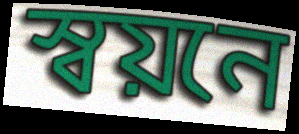
স্বয়নে